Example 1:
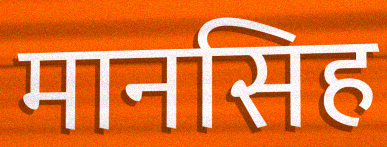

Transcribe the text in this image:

मानसिह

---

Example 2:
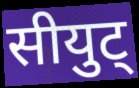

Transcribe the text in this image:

सीयुट्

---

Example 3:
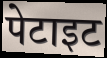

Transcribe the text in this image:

पेटाइट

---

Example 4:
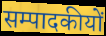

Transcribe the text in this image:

सम्पादकीयों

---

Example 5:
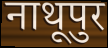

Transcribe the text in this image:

नाथूपुर